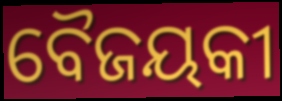
ବୈଜୟକୀ